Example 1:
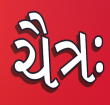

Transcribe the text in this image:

ચૈત્રઃ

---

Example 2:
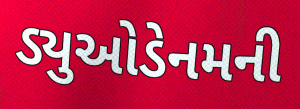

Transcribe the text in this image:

ડ્યુઓડેનમની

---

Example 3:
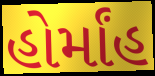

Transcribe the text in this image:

હોર્માંહ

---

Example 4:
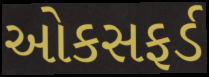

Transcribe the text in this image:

ઓકસફર્ડ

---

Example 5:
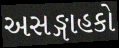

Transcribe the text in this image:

અસઙ્ગાહકો